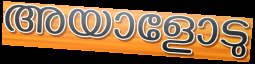
അയാളോടു